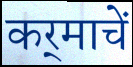
कर्माचें